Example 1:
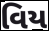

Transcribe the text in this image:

વિય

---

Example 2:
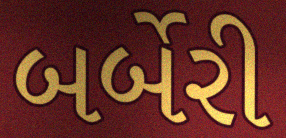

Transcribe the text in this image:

બર્બેરી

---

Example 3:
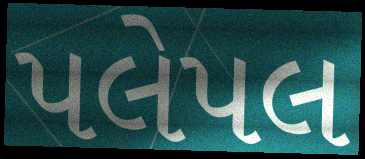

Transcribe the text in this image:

પલેપલ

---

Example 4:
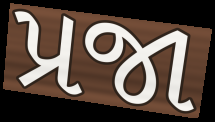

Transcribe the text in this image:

પ્રજા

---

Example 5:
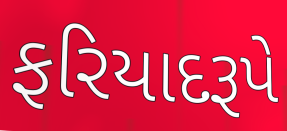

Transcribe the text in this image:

ફરિયાદરૂપે